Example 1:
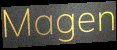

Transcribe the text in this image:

Magen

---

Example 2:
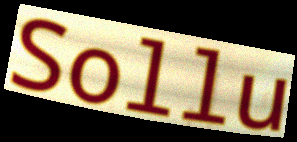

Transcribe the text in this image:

Sollu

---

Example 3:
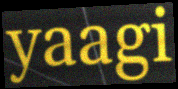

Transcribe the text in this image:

yaagi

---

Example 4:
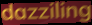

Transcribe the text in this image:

dazziling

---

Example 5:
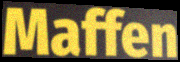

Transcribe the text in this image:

Maffen